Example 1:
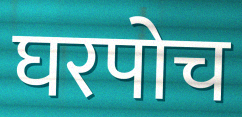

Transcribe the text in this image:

घरपोच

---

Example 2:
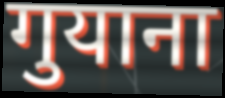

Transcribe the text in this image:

गुयाना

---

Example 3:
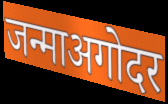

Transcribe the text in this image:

जन्माअगोदर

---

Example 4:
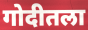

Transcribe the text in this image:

गोदीतला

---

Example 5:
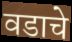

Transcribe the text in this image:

वडाचे